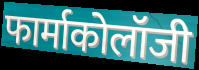
फार्माकोलॉजी